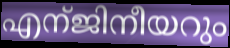
എന്ജിനീയറും